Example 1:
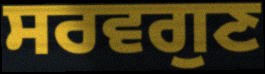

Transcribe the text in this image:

ਸਰਵਗੁਣ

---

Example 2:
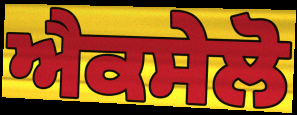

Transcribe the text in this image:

ਐਕਸੇਲੋ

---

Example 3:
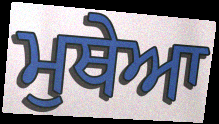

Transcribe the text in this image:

ਮੁਥੇਆ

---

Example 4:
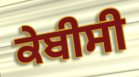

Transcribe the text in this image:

ਕੇਬੀਸੀ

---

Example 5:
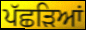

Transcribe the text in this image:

ਪੱਛੜਿਆਂ